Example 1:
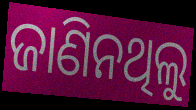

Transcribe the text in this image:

ଜାଣିନଥିଲୁ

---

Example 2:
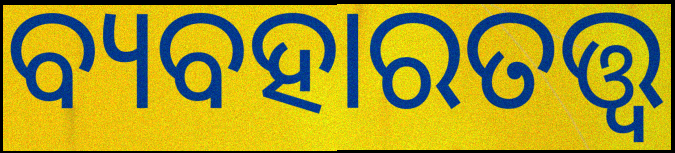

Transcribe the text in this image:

ବ୍ୟବହାରତତ୍ତ୍ବ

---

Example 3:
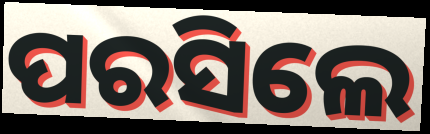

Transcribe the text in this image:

ପରସିଲେ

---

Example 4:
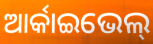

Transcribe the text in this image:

ଆର୍କାଇଭେଲ୍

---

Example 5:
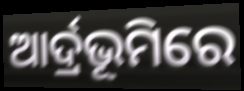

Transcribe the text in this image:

ଆର୍ଦ୍ରଭୂମିରେ